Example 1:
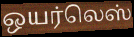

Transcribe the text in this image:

ஒயர்லெஸ்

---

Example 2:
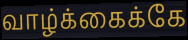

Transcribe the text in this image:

வாழ்க்கைக்கே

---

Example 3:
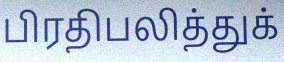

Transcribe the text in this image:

பிரதிபலித்துக்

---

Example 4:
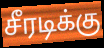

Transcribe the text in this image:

சீரடிக்கு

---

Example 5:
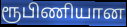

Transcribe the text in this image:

ரூபிணியான